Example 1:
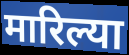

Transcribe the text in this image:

मारिल्या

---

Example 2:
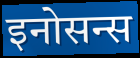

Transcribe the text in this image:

इनोसन्स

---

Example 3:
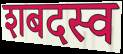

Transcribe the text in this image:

शबदस्व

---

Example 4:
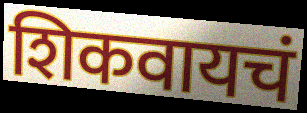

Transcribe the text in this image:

शिकवायचं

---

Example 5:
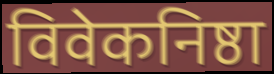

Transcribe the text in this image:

विवेकनिष्ठा